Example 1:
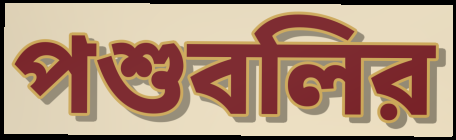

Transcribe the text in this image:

পশুবলির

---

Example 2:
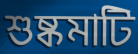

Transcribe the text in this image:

শুষ্কমাটি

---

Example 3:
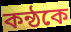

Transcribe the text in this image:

কন্ঠকে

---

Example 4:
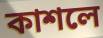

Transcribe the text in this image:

কাশলে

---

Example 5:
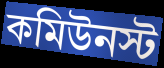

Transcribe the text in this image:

কমিউনস্ট